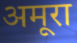
अमूरा